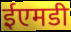
ईएमडी